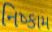
નિષ્કામ